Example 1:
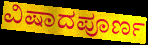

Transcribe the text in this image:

ವಿಷಾದಪೂರ್ಣ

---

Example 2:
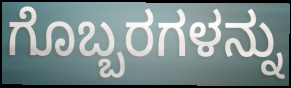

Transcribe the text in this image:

ಗೊಬ್ಬರಗಳನ್ನು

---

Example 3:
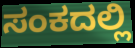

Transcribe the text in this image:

ಸಂಕದಲ್ಲಿ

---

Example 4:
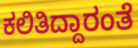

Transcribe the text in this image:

ಕಲಿತಿದ್ದಾರಂತೆ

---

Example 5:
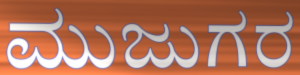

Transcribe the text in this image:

ಮುಜುಗರ